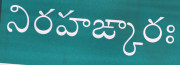
నిరహఙ్కారః